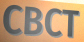
CBCT